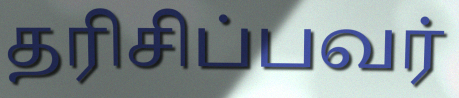
தரிசிப்பவர்